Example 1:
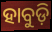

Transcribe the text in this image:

ହାବୁଡ଼ି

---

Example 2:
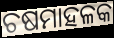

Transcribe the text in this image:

ଚଷମାହଳକ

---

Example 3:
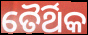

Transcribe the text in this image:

ତୈର୍ଥିକ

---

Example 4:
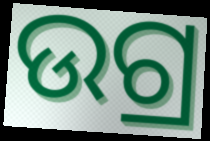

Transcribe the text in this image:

ଉଗ୍ର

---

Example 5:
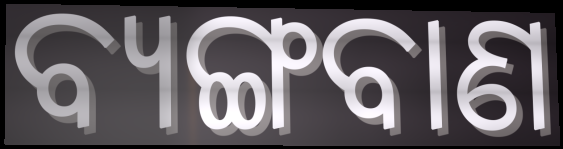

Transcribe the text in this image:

ବ୍ୟଙ୍ଗବାଣ